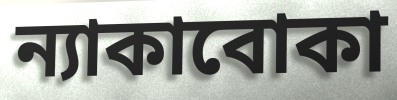
ন্যাকাবোকা